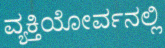
ವ್ಯಕ್ತಿಯೋರ್ವನಲ್ಲಿ